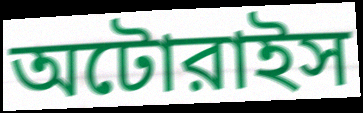
অটোরাইস